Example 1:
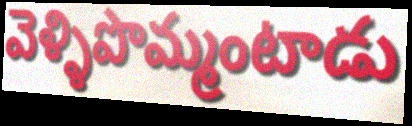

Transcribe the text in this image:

వెళ్ళిపొమ్మంటాడు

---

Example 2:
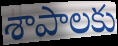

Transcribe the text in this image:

శాపాలకు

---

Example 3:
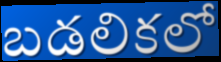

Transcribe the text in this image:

బడలికలో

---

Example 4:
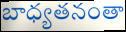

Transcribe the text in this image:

బాధ్యతనంతా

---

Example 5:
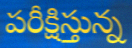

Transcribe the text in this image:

పరీక్షిస్తున్న